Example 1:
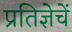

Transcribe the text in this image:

प्रतिज्ञेचें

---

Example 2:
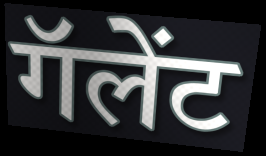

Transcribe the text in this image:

गॅलेंट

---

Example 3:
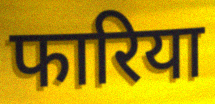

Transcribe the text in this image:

फारिया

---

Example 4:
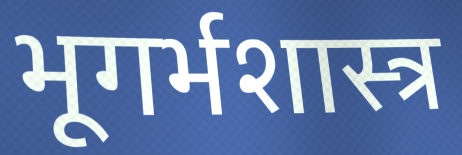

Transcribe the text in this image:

भूगर्भशास्त्र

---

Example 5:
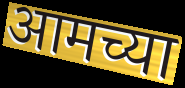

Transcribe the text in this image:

आमच्या